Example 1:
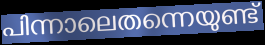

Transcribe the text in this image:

പിന്നാലെതന്നെയുണ്ട്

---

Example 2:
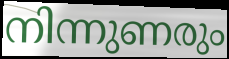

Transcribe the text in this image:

നിന്നുണരും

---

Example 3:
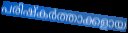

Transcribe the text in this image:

പരിഷ്കർത്താക്കളായ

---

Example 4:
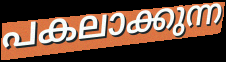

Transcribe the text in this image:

പകലാക്കുന്ന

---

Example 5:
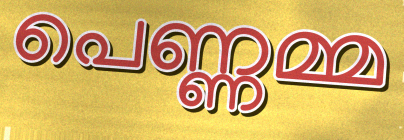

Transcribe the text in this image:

പെണ്ണമ്മ